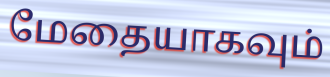
மேதையாகவும்